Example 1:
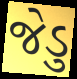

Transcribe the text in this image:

જેડુ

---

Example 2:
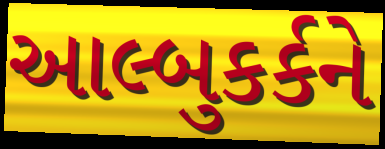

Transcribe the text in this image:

આલ્બુકર્કને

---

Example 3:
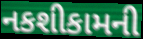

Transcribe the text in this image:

નકશીકામની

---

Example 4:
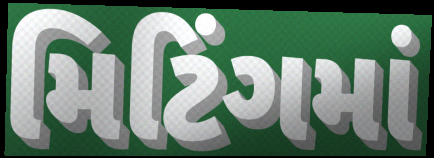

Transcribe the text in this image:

મિટિંગમાં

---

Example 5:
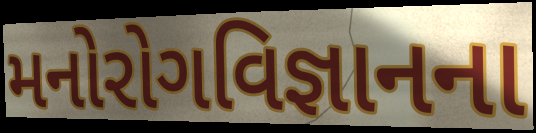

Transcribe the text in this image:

મનોરોગવિજ્ઞાનના